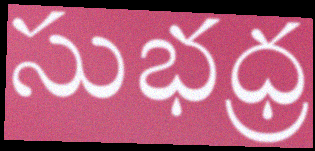
సుభధ్ర